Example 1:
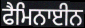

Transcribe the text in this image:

ਫੈਮਿਨਾਈਨ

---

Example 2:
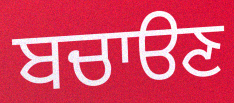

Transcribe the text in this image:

ਬਚਾੳਣ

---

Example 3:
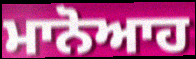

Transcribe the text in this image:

ਮਾਨੋਆਹ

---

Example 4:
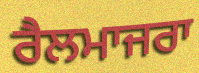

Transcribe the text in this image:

ਰੈਲਮਾਜਰਾ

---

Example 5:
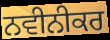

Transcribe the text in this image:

ਨਵੀਨੀਕਰ